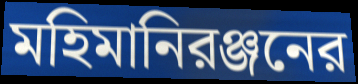
মহিমানিরঞ্জনের